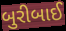
બુરીબાઈ